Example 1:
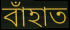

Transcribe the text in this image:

বাঁহাত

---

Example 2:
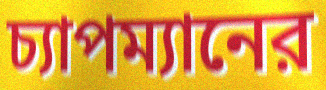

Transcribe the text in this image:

চ্যাপম্যানের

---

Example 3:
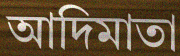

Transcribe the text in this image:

আদিমাতা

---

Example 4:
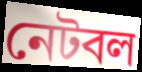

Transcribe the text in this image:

নেটবল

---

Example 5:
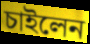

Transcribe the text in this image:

চাইলেন